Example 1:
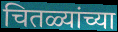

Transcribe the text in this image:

चितळ्यांच्या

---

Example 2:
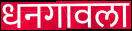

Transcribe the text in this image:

धनगावला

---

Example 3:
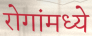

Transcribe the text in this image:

रोगांमध्ये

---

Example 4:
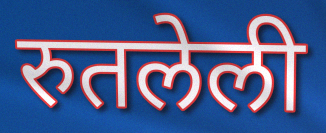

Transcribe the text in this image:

रुतलेली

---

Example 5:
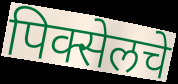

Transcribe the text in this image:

पिक्सेलचे